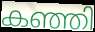
കഞ്ഞി